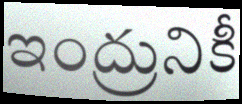
ఇంద్రునికీ